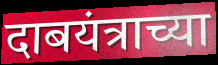
दाबयंत्राच्या